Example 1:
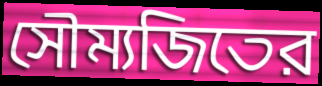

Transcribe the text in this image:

সৌম্যজিতের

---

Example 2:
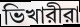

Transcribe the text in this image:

ভিখারীরা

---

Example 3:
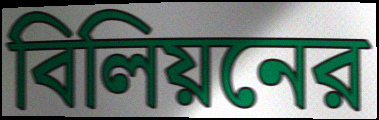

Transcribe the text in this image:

বিলিয়নের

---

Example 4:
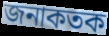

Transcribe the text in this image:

জনাকতক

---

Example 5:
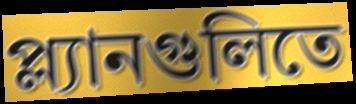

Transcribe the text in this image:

প্ল্যানগুলিতে